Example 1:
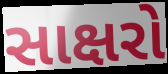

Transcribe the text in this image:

સાક્ષરો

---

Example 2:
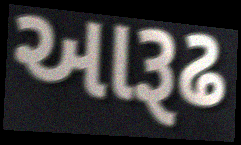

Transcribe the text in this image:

આરૂઢ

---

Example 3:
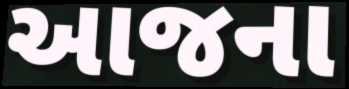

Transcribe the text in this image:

આજના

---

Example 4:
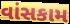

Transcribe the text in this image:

વાંસકામ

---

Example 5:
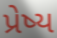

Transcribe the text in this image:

પ્રેષ્ય